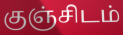
குஞ்சிடம்